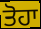
ਤੋਹਾ